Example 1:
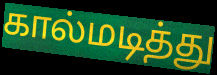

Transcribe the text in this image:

கால்மடித்து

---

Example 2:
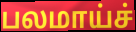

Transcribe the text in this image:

பலமாய்ச்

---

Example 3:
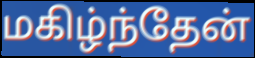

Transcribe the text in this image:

மகிழ்ந்தேன்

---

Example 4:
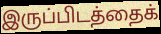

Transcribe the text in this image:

இருப்பிடத்தைக்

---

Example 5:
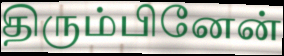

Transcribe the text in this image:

திரும்பினேன்